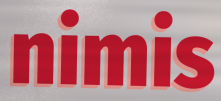
nimis